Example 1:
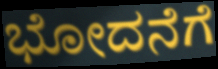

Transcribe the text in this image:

ಭೋದನೆಗೆ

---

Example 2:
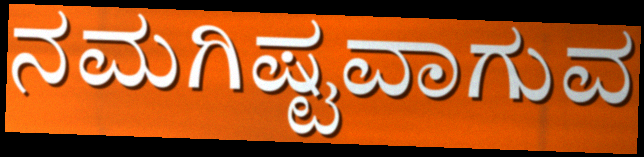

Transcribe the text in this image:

ನಮಗಿಷ್ಟವಾಗುವ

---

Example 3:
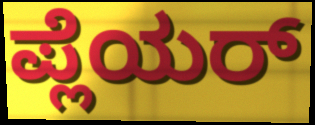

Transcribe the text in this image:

ಪ್ಲೆಯರ್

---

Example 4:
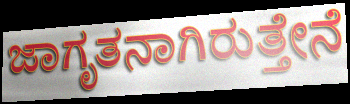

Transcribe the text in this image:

ಜಾಗೃತನಾಗಿರುತ್ತೇನೆ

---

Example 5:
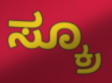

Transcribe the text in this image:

ಸ್ಕ್ರೂ